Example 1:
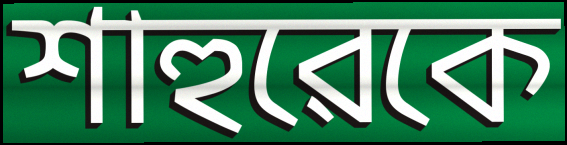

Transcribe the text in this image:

শাহুৱেকে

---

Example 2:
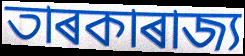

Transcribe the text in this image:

তাৰকাৰাজ্য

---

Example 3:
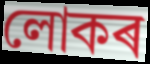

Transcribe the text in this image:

লোকৰ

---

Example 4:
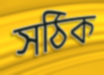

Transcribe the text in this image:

সঠিক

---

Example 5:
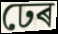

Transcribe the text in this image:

ঢেৰ